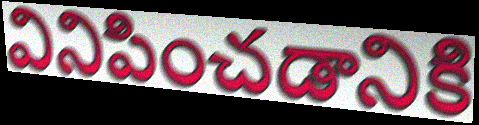
వినిపించడానికి